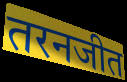
तरनजीत